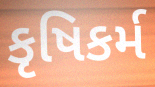
કૃષિકર્મ